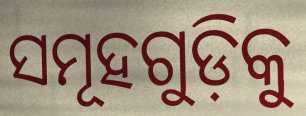
ସମୂହଗୁଡ଼ିକୁ